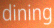
dining